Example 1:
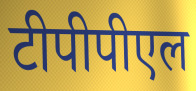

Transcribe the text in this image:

टीपीपीएल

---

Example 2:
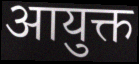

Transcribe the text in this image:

आयुक्त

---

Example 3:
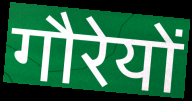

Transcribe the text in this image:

गौरेयों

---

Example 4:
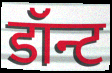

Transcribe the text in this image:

डॉन्ट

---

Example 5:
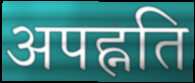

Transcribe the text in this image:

अपह्नति